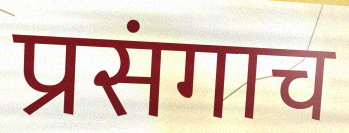
प्रसंगाच